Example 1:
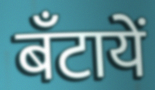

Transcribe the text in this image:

बँटायें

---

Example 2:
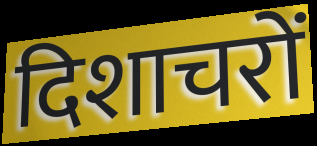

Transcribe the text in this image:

दिशाचरों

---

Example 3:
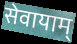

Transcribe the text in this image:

सेवायाम्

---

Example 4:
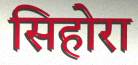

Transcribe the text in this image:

सिहोरा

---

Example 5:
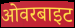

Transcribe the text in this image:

ओवरबाइट